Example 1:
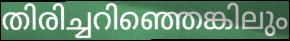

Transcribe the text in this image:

തിരിച്ചറിഞ്ഞെങ്കിലും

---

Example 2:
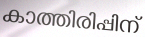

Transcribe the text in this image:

കാത്തിരിപ്പിന്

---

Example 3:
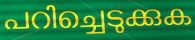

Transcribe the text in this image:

പറിച്ചെടുക്കുക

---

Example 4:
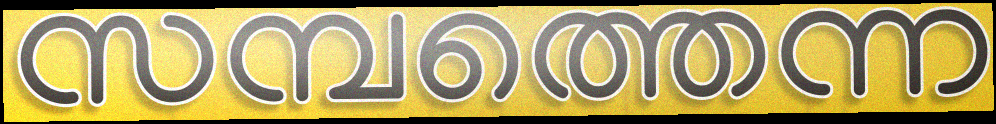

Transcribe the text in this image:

സമ്പത്തെന്ന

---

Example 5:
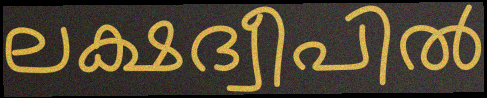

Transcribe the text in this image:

ലക്ഷദ്വീപിൽ